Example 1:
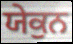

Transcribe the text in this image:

ਯੇਕੁਨ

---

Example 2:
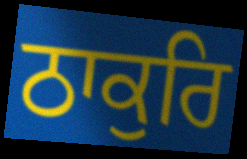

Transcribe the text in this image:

ਠਾਕੁਰਿ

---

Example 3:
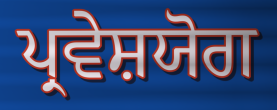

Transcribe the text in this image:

ਪ੍ਰਵੇਸ਼ਯੋਗ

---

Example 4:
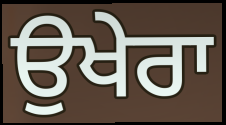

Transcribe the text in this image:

ਉਖੇਰਾ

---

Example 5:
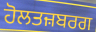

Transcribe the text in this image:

ਹੋਲਤਜ਼ਬਰਗ